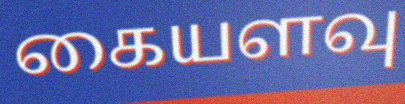
கையளவு